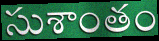
సుశాంతం